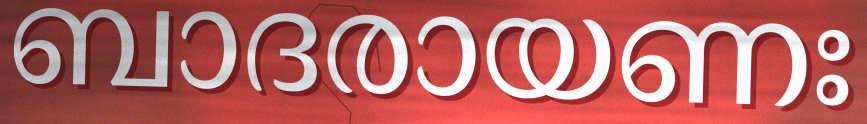
ബാദരായണഃ